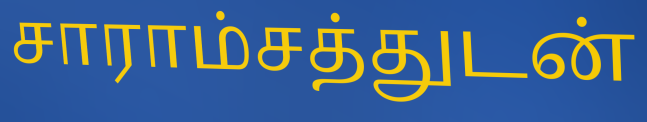
சாராம்சத்துடன்